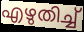
എഴുതിച്ച്